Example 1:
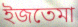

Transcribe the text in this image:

ইজতেমা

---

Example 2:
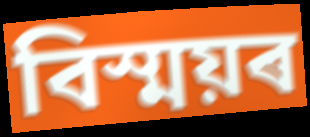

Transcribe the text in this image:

বিস্ময়ৰ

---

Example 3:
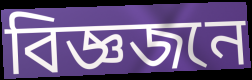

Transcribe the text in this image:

বিজ্ঞজনে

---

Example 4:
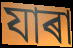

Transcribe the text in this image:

যাৰা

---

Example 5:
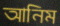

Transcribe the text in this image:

আনিম